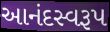
આનંદસ્વરૂપ